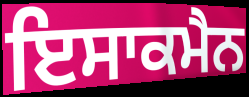
ਇਸਾਕਮੈਨ